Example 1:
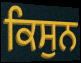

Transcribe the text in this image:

ਕਿਸੁਨ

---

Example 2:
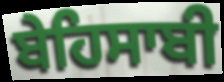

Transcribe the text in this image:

ਬੇਹਿਸਾਬੀ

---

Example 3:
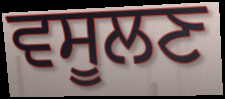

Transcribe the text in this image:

ਵਸੂਲਣ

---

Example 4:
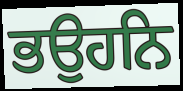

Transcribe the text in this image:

ਭਉਹਨਿ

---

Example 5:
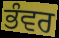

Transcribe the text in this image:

ਭੰਵਰ